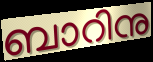
ബാറിനു